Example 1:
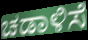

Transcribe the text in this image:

ಚಡಾಳಿಸೆ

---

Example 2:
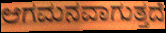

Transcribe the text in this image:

ಆಗಮನವಾಗುತ್ತದೆ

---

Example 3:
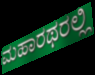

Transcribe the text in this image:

ಮಹಾರಥರಲ್ಲಿ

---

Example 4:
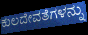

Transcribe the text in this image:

ಕುಲದೇವತೆಗಳನ್ನು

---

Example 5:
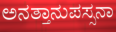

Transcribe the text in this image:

ಅನತ್ತಾನುಪಸ್ಸನಾ